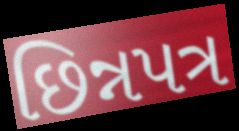
છિન્નપત્ર